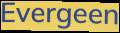
Evergeen